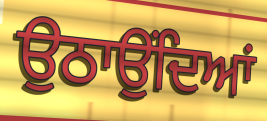
ਉਠਾਉਂਦਿਆਂ